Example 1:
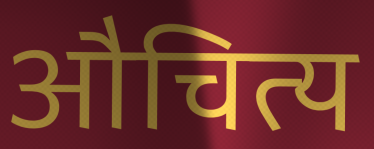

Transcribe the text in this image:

औचित्‍य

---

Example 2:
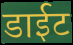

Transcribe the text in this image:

डाईट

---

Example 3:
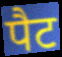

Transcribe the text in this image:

पैट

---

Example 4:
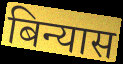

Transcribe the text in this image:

बिन्यास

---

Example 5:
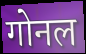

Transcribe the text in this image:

गोनल